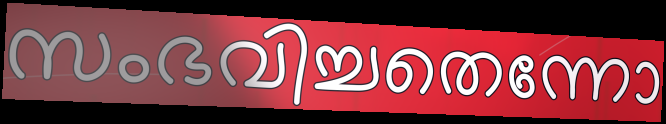
സംഭവിച്ചതെന്നോ